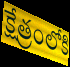
క్షేత్రంలోకి